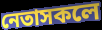
নেতাসকলে